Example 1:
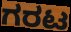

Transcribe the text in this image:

ಗರಟ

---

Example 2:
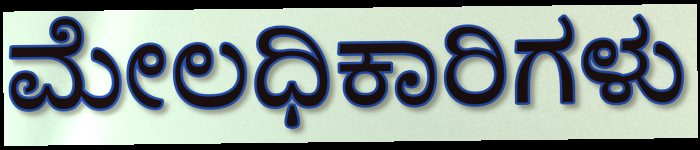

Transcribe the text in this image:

ಮೇಲಧಿಕಾರಿಗಳು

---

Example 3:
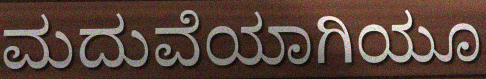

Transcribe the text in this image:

ಮದುವೆಯಾಗಿಯೂ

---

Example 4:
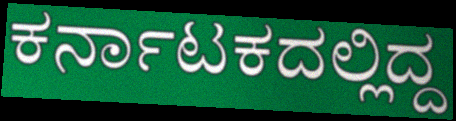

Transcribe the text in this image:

ಕರ್ನಾಟಕದಲ್ಲಿದ್ದ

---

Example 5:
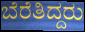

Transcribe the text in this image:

ಬೆರೆತಿದ್ದರು